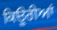
ਕਿਊਰੀਆਂ